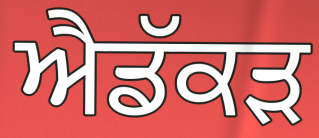
ਐਡੱਕੜ